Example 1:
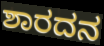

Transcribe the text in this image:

ಶಾರದನ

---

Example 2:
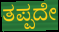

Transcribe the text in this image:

ತಪ್ಪದೇ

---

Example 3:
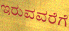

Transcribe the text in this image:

ಇರುವವರೆಗೆ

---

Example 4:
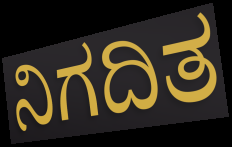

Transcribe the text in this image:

ನಿಗದಿತ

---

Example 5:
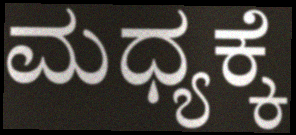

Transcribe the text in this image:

ಮಧ್ಯಕ್ಕೆ